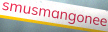
smusmangonee